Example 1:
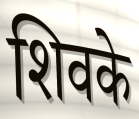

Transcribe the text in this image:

शिवके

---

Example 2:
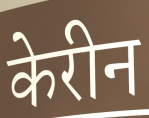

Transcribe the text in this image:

केरीन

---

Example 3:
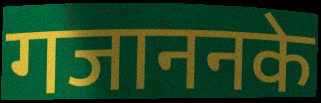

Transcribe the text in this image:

गजाननके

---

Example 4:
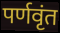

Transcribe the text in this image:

पर्णवृंत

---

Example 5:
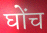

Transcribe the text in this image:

घोंच